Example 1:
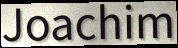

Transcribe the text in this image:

Joachim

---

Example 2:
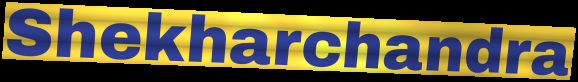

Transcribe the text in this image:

Shekharchandra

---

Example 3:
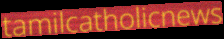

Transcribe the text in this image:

tamilcatholicnews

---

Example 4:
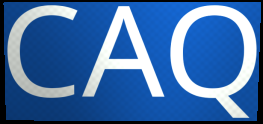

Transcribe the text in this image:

CAQ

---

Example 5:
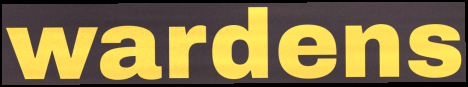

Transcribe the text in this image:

wardens